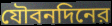
যৌবনদিনের